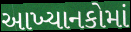
આખ્યાનકોમાં